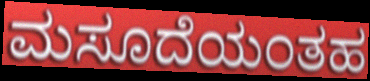
ಮಸೂದೆಯಂತಹ